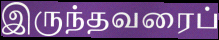
இருந்தவரைப்